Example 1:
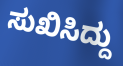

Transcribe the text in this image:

ಸುಖಿಸಿದ್ದು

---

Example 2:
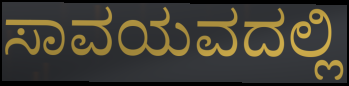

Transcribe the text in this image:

ಸಾವಯವದಲ್ಲಿ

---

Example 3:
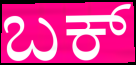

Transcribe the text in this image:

ಬಕ್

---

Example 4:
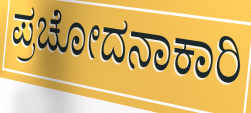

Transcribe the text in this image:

ಪ್ರಚೋದನಾಕಾರಿ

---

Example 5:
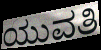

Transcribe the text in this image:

ಯುವತಿ